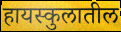
हायस्कुलातील